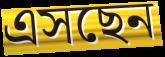
এসছেন